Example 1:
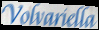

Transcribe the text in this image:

Volvariella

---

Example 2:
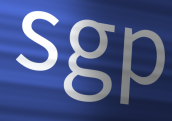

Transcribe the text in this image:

sgp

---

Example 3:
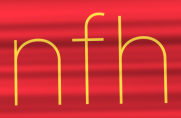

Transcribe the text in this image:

nfh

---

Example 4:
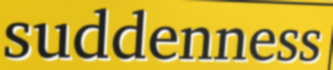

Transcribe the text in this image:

suddenness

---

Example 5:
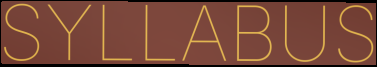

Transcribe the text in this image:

SYLLABUS